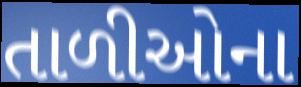
તાળીઓના